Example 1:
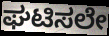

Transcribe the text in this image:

ಘಟಿಸಲೇ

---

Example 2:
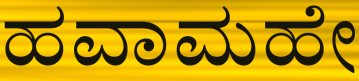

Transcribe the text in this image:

ಹವಾಮಹೇ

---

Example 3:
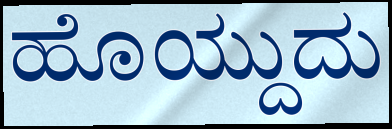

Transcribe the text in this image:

ಹೊಯ್ದುದು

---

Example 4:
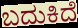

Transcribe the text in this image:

ಬದುಕಿದೆ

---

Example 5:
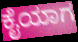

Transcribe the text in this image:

ಕೈಯಾಗ